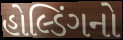
હોલ્ડિંગનો